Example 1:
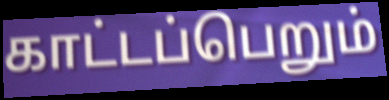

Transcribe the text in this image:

காட்டப்பெறும்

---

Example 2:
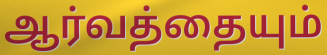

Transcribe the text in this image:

ஆர்வத்தையும்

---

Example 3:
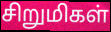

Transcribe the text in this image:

சிறுமிகள்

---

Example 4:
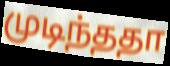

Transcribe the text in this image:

முடிந்ததா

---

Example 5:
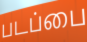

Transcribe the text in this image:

படப்பை